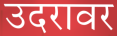
उदरावर